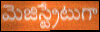
మెజిస్ట్రేటుగా